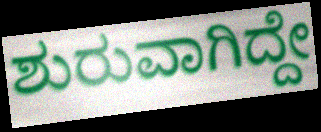
ಶುರುವಾಗಿದ್ದೇ